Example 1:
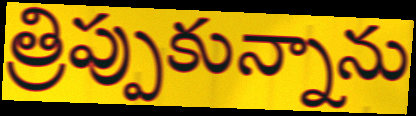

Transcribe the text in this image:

త్రిప్పుకున్నాను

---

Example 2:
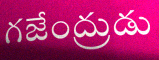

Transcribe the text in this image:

గజేంద్రుడు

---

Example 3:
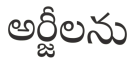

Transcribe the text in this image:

అర్జీలను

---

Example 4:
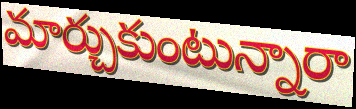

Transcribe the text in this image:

మార్చుకుంటున్నారా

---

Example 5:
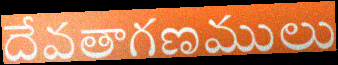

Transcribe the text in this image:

దేవతాగణములు